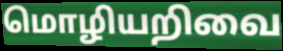
மொழியறிவை